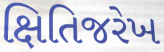
ક્ષિતિજરેખ